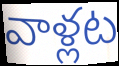
వాళ్లట